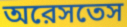
অরেসতেস